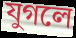
যুগলে